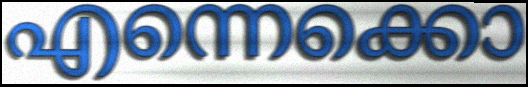
എന്നെക്കൊ